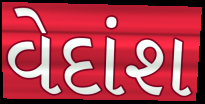
વેદાંશ